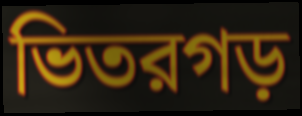
ভিতরগড়